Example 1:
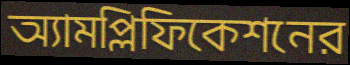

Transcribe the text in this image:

অ্যামপ্লিফিকেশনের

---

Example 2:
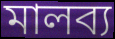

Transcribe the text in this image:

মালব্য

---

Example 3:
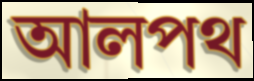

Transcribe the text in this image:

আলপথ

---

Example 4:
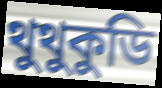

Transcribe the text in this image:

থুথুকুডি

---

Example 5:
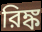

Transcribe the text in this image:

রিঙ্ক